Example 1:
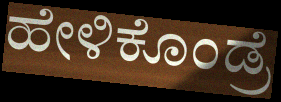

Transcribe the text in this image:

ಹೇಳಿಕೊಂಡ್ರೆ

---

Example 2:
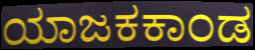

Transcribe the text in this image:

ಯಾಜಕಕಾಂಡ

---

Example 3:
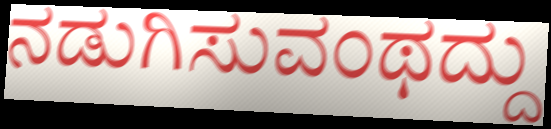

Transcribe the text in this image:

ನಡುಗಿಸುವಂಥದ್ದು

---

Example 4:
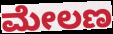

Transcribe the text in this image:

ಮೇಲಣ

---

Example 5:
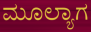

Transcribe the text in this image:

ಮೂಲ್ಯಾಗ